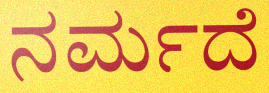
ನರ್ಮದೆ